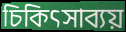
চিকিৎসাব্যয়